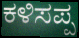
ಕಳಿಸಪ್ಪ